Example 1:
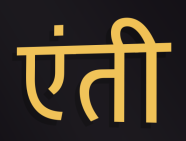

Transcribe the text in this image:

एंती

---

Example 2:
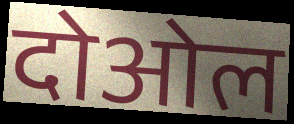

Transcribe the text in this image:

दोओल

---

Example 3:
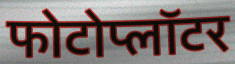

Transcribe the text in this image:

फोटोप्लॉटर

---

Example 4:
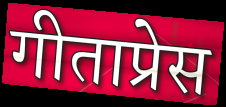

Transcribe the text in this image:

गीताप्रेस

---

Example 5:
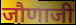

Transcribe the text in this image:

जौणाजी